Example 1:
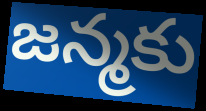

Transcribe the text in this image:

జన్మకు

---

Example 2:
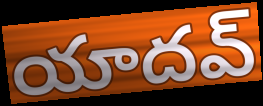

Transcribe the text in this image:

యాదవ్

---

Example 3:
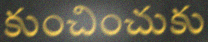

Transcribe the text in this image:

కుంచించుకు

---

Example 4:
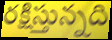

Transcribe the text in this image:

రక్షిస్తున్నది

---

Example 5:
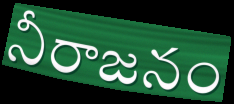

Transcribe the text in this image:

నీరాజనం